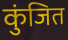
कुंजित